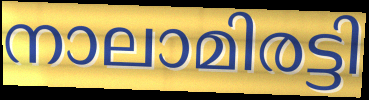
നാലാമിരട്ടി